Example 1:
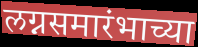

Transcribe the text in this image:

लग्नसमारंभाच्या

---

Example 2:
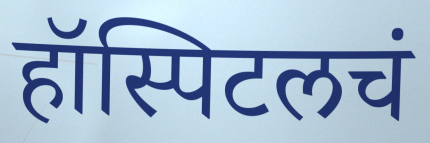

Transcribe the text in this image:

हॉस्पिटलचं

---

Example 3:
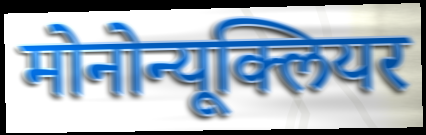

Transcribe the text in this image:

मोनोन्यूक्लियर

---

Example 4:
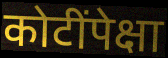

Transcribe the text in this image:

कोटींपेक्षा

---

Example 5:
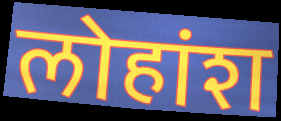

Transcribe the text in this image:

लोहांश